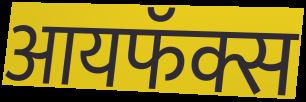
आयफॅक्स